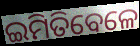
ଇମିତିବେଳେ